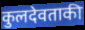
कुलदेवताकी